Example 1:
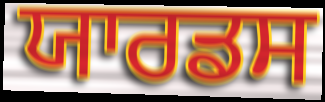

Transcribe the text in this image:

ਯਾਰਡਸ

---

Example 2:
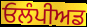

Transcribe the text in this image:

ਓਲੰਪੀਅਡ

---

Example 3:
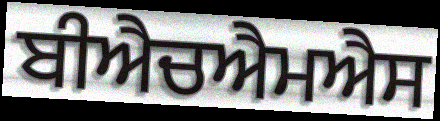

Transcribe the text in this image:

ਬੀਐਚਐਮਐਸ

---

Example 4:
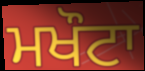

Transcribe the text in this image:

ਮਖੌਟਾ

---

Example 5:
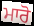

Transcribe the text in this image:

ਮਾਰੋ